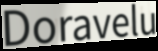
Doravelu